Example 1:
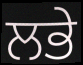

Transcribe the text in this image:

ਲਭੇ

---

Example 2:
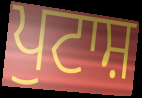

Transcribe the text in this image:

ਪੁਟਾਸ਼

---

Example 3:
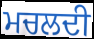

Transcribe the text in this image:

ਮਚਲਦੀ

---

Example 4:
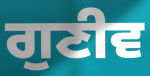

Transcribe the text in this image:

ਗੁਣੀਵ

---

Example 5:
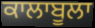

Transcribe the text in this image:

ਕਾਲਾਬੂਲਾ